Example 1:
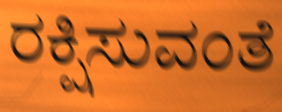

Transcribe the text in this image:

ರಕ್ಷಿಸುವಂತೆ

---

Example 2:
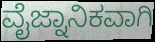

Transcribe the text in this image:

ವೈಜ್ನಾನಿಕವಾಗಿ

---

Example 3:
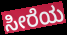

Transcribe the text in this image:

ಸೀರೆಯ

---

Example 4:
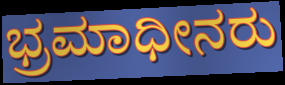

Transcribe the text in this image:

ಭ್ರಮಾಧೀನರು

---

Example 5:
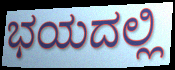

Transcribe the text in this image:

ಭಯದಲ್ಲಿ